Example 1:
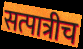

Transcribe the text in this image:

सत्पात्रीच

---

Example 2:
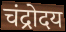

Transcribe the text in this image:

चंद्रोदय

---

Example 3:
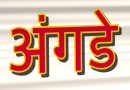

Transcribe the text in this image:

अंगडे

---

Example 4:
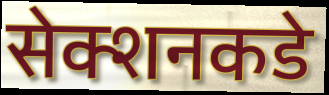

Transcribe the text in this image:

सेक्शनकडे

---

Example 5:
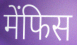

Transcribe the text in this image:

मेंफिस